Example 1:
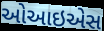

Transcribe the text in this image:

ઓઆઇએસ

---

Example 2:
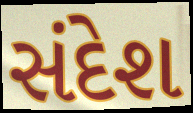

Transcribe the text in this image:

સંદેશ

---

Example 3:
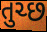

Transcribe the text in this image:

તુચ્છ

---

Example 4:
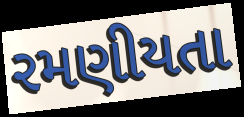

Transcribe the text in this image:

રમણીયતા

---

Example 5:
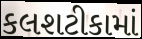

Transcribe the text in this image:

કલશટીકામાં